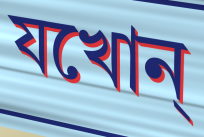
যখোন্